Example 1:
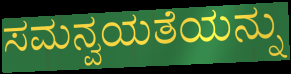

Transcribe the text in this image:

ಸಮನ್ವಯತೆಯನ್ನು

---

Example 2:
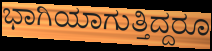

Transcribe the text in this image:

ಭಾಗಿಯಾಗುತ್ತಿದ್ದರೂ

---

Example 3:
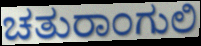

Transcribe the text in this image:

ಚತುರಾಂಗುಲಿ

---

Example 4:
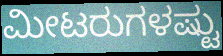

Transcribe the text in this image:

ಮೀಟರುಗಳಷ್ಟು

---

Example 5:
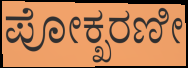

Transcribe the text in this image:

ಪೋಕ್ಖರಣೀ